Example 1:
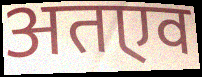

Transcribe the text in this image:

अतएव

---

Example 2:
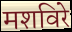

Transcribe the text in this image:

मशविरे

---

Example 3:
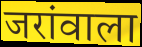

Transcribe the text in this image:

जरांवाला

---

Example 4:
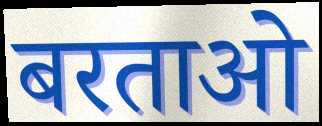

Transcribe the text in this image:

बरताओ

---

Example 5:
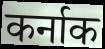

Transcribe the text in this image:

कर्नाक